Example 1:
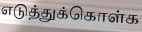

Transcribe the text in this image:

எடுத்துக்கொள்க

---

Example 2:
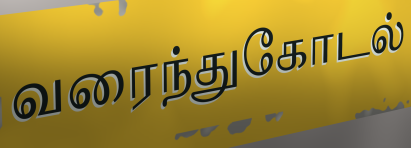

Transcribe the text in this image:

வரைந்துகோடல்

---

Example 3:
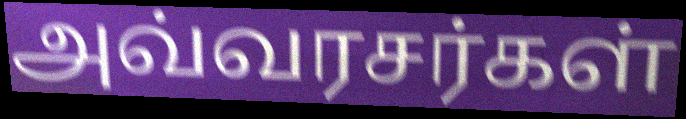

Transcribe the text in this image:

அவ்வரசர்கள்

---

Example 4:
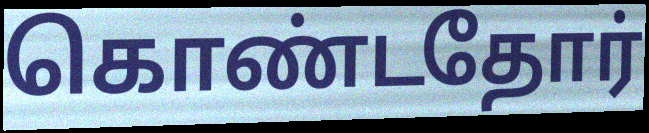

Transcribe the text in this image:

கொண்டதோர்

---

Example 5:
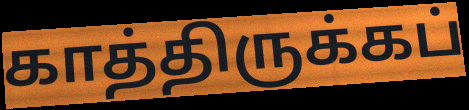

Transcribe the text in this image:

காத்திருக்கப்